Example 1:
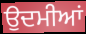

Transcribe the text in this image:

ਉਦਮੀਆਂ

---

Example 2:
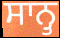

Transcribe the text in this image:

ਸਾਨ੍ਤ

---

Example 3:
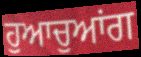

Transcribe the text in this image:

ਹੁਆਚੁਆਂਗ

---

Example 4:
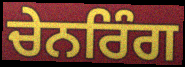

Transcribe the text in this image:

ਚੇਨਰਿੰਗ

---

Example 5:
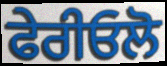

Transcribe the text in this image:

ਫੇਰੀਓਲੋ